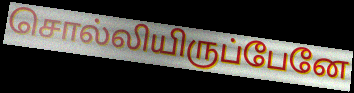
சொல்லியிருப்பேனே